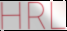
HRL